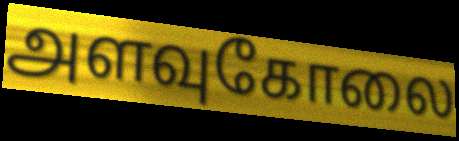
அளவுகோலை